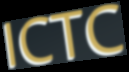
ICTC